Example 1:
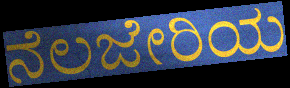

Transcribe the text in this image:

ನೆಲಜೇರಿಯ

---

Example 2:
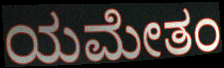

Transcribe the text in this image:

ಯಮೇತಂ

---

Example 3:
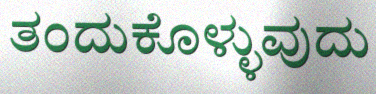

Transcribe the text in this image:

ತಂದುಕೊಳ್ಳುವುದು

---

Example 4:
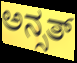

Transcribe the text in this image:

ಅನ್ಸತ್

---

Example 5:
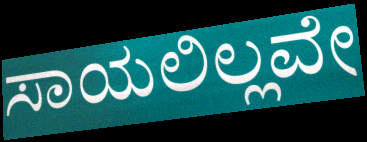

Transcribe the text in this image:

ಸಾಯಲಿಲ್ಲವೇ